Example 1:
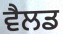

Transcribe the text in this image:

ਵੈਲਡ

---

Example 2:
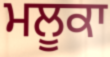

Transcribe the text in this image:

ਮਲੂਕਾ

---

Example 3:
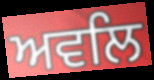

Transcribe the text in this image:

ਅਵਲਿ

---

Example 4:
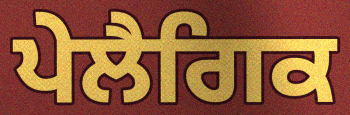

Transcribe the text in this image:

ਪੇਲੈਗਿਕ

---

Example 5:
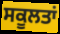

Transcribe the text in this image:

ਸਕੂਲਤਾਂ